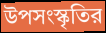
উপসংস্কৃতির